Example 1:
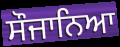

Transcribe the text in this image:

ਸੌਜਾਨਿਆ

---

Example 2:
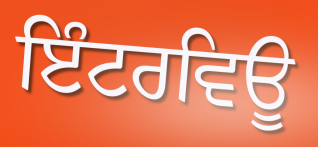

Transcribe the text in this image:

ਇੰਟਰਵਿਊ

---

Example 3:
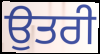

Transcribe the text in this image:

ਉਤਰੀ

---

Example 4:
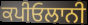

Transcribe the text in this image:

ਕਪੀਓਲਾਨੀ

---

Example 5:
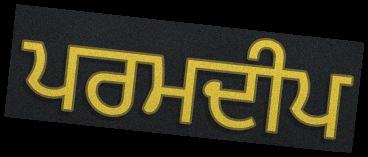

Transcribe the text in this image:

ਪਰਮਦੀਪ